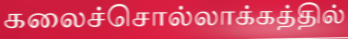
கலைச்சொல்லாக்கத்தில்